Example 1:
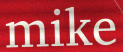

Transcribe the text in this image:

mike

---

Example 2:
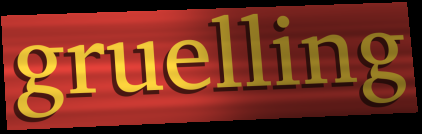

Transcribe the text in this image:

gruelling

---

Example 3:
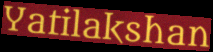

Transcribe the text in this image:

Yatilakshan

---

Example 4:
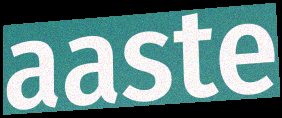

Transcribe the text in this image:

aaste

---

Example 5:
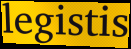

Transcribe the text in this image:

legistis